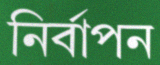
নির্বাপন